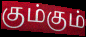
கும்கும்